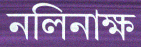
নলিনাক্ষ